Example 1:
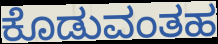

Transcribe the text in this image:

ಕೊಡುವಂತಹ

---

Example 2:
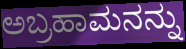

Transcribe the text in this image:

ಅಬ್ರಹಾಮನನ್ನು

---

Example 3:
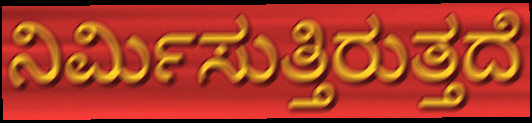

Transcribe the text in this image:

ನಿರ್ಮಿಸುತ್ತಿರುತ್ತದೆ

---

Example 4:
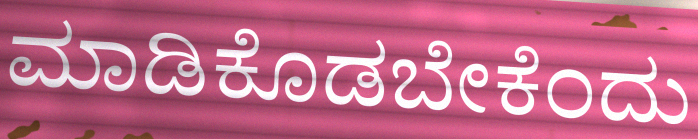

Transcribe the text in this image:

ಮಾಡಿಕೊಡಬೇಕೆಂದು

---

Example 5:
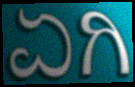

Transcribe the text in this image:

ಏಗಿ